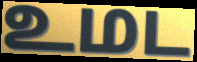
உமட